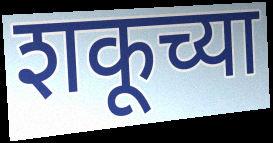
शकूच्या